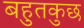
बहुतकुछ